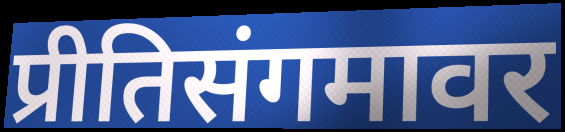
प्रीतिसंगमावर